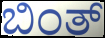
ಬಿಂತ್